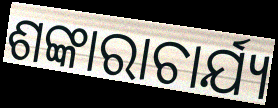
ଶଙ୍କାରାଚାର୍ଯ୍ୟ